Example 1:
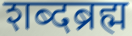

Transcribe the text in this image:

शब्दब्रह्म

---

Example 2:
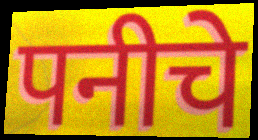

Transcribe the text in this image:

पनीचे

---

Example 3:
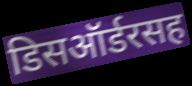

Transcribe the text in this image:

डिसऑर्डरसह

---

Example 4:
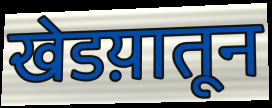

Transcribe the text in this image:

खेडय़ातून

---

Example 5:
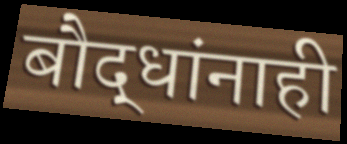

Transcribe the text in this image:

बौद्धांनाही